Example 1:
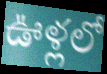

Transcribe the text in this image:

ఊళ్లలో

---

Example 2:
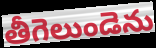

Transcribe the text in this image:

తీగెలుండెను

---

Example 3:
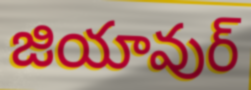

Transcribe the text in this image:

జియావుర్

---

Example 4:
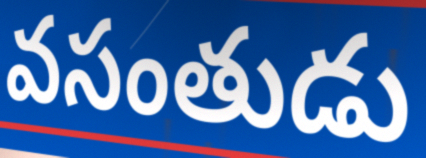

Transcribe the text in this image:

వసంతుడు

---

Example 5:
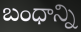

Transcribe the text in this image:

బంధాన్ని